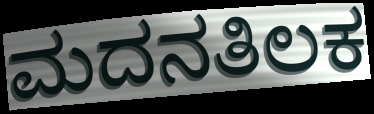
ಮದನತಿಲಕ